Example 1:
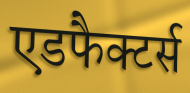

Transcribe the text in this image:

एडफैक्टर्स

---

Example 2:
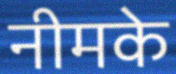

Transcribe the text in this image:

नीमके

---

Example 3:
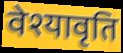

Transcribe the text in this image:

वेश्यावृति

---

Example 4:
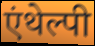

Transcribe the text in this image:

एंथेल्पी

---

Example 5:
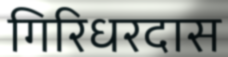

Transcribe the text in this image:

गिरिधरदास